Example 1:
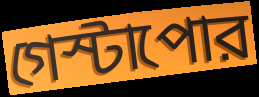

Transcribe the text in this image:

গেস্টাপোর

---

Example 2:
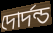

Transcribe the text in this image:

দোর্দন্ড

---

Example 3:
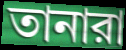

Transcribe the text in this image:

তানারা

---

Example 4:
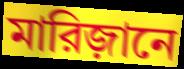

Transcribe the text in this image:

মারিজ়ানে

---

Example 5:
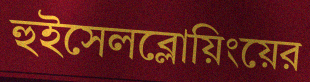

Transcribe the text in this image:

হুইসেলব্লোয়িংয়ের